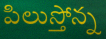
పిలుస్తోన్న